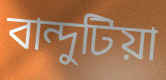
বান্দুটিয়া